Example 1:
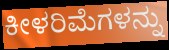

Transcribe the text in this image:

ಕೀಳರಿಮೆಗಳನ್ನು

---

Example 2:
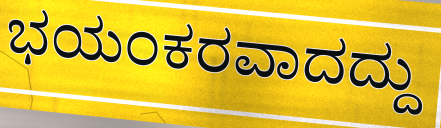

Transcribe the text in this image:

ಭಯಂಕರವಾದದ್ದು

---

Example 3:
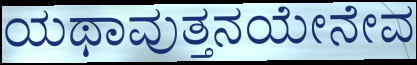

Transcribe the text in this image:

ಯಥಾವುತ್ತನಯೇನೇವ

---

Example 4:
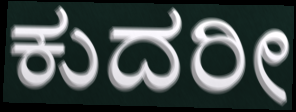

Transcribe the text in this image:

ಕುದರೀ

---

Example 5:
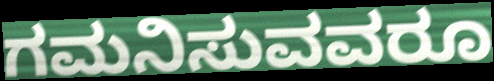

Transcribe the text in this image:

ಗಮನಿಸುವವರೂ